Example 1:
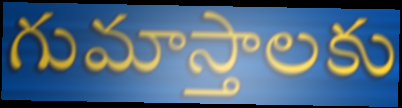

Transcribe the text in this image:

గుమాస్తాలకు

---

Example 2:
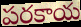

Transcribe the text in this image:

పరకాయ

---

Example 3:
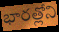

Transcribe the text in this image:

భారత్లోని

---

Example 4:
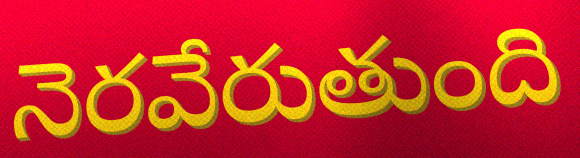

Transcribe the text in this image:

నెరవేరుతుంది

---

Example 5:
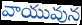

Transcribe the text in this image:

వాయువున